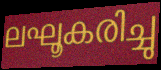
ലഘൂകരിച്ചു